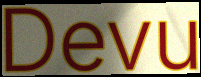
Devu